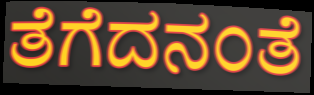
ತೆಗೆದನಂತೆ